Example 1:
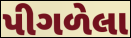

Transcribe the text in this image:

પીગળેલા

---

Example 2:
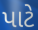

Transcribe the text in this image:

પાટે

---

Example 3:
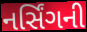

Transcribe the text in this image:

નર્સિંગની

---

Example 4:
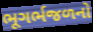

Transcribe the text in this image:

ભૂગર્ભજળનો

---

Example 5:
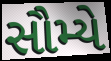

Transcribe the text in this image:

સૌમ્યે